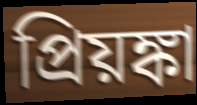
প্রিয়ঙ্কা